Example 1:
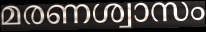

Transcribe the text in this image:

മരണശ്വാസം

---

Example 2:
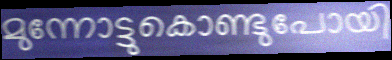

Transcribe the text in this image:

മുന്നോട്ടുകൊണ്ടുപോയി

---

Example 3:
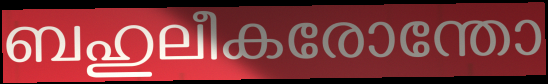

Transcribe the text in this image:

ബഹുലീകരോന്തോ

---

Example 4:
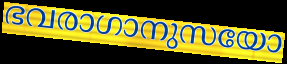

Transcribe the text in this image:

ഭവരാഗാനുസയോ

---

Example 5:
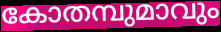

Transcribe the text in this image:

കോതമ്പുമാവും